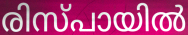
രിസ്പായിൽ